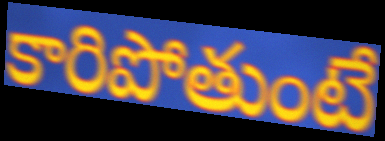
కారిపోతుంటే